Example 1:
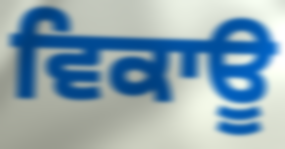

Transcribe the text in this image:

ਵਿਕਾਊ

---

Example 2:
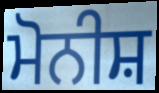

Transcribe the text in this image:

ਮੋਨੀਸ਼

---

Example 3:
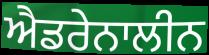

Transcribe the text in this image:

ਐਡਰੇਨਾਲੀਨ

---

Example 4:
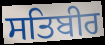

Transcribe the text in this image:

ਸਤਿਬੀਰ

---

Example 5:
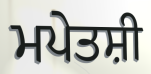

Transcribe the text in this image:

ਮਪੇਤਸ਼ੀ